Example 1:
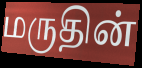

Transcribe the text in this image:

மருதின்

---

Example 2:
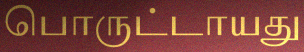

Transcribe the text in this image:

பொருட்டாயது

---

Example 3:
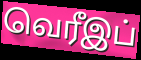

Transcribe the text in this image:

வெரீஇப்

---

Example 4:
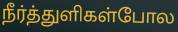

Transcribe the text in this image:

நீர்த்துளிகள்போல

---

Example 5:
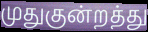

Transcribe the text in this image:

முதுகுன்றத்து